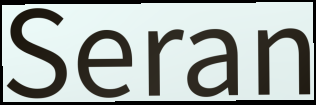
Seran